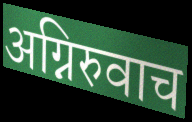
अग्निरुवाच